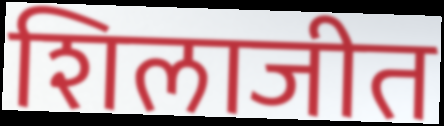
शिलाजीत